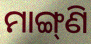
ମାଙ୍ଗ୍‌ଣି